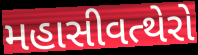
મહાસીવત્થેરો